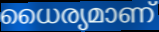
ധൈര്യമാണ്